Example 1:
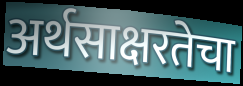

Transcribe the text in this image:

अर्थसाक्षरतेचा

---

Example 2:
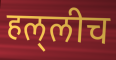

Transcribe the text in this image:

हल्लीच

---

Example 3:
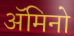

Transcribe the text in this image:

ॲमिनो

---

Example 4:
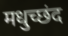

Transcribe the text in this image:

मधुच्छंद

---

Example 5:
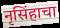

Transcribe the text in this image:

नृसिंहाचा